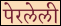
पेरलेली